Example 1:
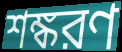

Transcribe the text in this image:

শঙ্করণ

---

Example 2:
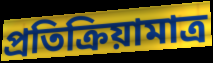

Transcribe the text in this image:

প্রতিক্রিয়ামাত্র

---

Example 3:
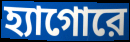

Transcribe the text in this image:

হ্যাগোরে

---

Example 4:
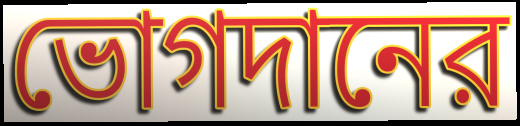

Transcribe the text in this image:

ভোগদানের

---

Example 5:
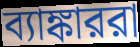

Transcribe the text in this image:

ব্যাঙ্কাররা